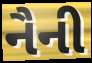
નૈની